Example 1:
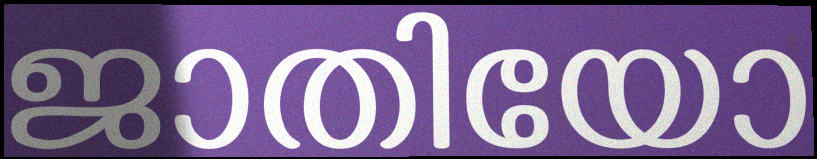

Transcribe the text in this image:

ജാതിയോ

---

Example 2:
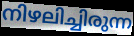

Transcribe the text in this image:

നിഴലിച്ചിരുന്ന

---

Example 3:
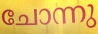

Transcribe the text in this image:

ചോന്നു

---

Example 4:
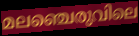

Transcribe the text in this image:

മലഞ്ചെരുവിലെ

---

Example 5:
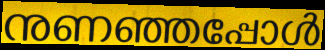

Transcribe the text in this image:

നുണഞ്ഞപ്പോൾ